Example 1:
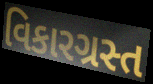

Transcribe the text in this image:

વિકારગ્રસ્ત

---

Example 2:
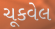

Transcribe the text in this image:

ચૂકવેલ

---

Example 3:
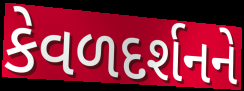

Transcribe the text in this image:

કેવળદર્શનને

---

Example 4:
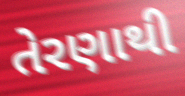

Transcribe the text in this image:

તેરણાથી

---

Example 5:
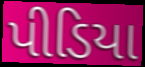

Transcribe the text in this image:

પીડિયા